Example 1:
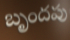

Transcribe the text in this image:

బృందపు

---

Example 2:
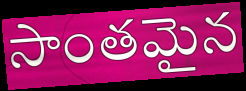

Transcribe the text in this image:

సాంతమైన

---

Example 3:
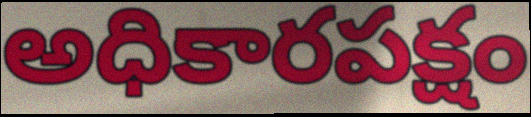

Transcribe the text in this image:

అధికారపక్షం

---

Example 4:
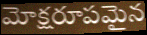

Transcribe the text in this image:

మోక్షరూపమైన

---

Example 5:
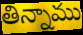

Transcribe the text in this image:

తిన్నాము